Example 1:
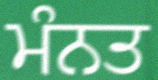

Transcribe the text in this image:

ਮੰਨਤ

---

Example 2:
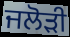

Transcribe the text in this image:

ਜਲੋੜੀ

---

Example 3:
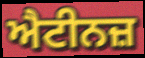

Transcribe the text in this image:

ਐਟੀਨਜ਼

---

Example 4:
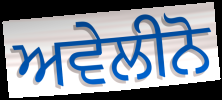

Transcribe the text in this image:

ਅਵੇਲੀਨੋ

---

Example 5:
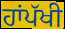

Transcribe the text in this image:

ਹਾਂਪੱਖੀ